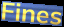
Fines